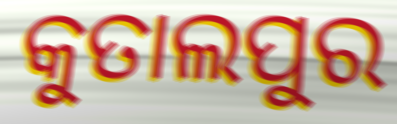
କୁତାଲପୁର